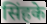
सिंहके